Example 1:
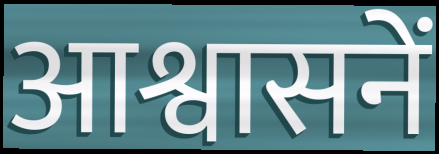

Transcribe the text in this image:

आश्वासनें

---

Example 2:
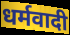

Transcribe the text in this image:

धर्मवादी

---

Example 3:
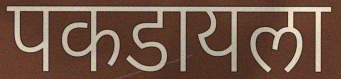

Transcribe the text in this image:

पकडायला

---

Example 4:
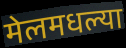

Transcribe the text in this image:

मेलमधल्या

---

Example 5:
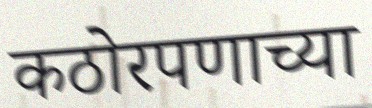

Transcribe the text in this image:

कठोरपणाच्या